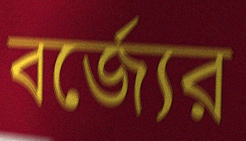
বর্জ্যের